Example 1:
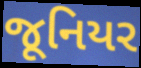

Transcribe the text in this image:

જૂનિયર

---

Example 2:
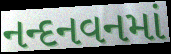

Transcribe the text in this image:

નન્દનવનમાં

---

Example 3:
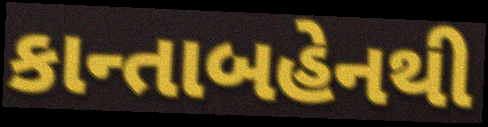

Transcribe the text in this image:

કાન્તાબહેનથી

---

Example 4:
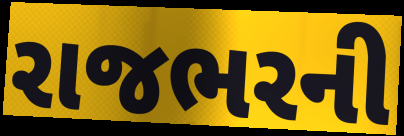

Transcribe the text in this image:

રાજભરની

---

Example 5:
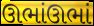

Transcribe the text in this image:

ઊભાંઊભાં